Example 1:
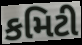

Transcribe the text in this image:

કમિટી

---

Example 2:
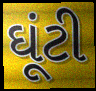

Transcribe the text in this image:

ઘૂંટી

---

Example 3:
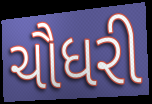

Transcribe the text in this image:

ચૌધરી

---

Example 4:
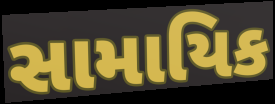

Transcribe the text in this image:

સામાયિક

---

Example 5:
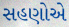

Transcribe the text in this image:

સહણોએ